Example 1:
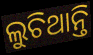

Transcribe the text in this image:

ଲୁଚିଥାନ୍ତି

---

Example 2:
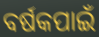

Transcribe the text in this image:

ବର୍ଷକପାଇଁ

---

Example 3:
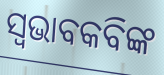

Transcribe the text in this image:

ସ୍ଵଭାବକବିଙ୍କ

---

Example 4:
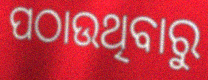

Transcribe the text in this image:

ପଠାଉଥିବାରୁ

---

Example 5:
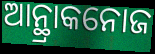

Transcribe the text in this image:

ଆନ୍ଥ୍ରାକନୋଜ